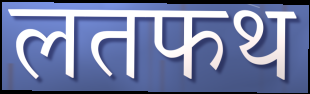
लतफथ